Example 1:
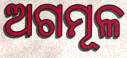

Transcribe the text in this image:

ଅଗମୂଳ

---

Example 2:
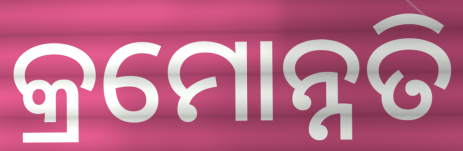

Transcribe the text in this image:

କ୍ରମୋନ୍ନତି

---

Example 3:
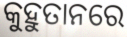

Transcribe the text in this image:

କୁହୁତାନରେ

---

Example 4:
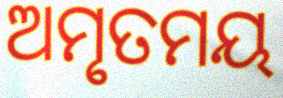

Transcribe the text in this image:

ଅମୃତମୟ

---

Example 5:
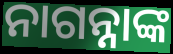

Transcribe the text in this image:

ନାଗନ୍ନାଙ୍କ